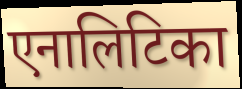
एनालिटिका